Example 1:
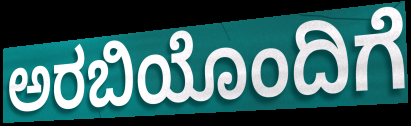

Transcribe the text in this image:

ಅರಬಿಯೊಂದಿಗೆ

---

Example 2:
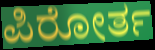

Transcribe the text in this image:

ಪಿರೋರ್ತ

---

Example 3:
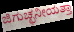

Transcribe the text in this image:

ಜಿಗುಚ್ಛನೀಯತ್ತಾ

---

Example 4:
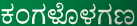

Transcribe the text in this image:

ಕಂಗಳೊಳಗಣ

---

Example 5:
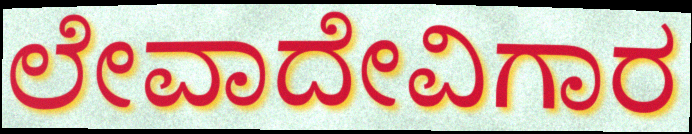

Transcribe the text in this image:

ಲೇವಾದೇವಿಗಾರ